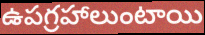
ఉపగ్రహాలుంటాయి